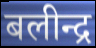
बलीन्द्र